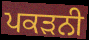
ਪਕੜਨੀ